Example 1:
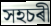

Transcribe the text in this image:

সহচৰী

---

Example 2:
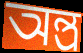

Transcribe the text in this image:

অন্ত্ৰ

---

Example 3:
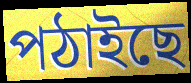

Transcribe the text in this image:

পঠাইছে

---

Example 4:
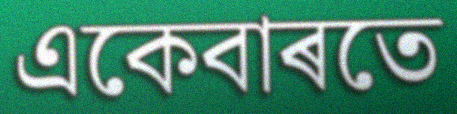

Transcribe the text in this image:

একেবাৰতে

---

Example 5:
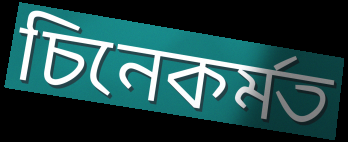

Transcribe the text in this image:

চিনেকৰ্মত